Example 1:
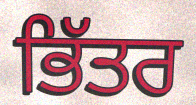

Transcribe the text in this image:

ਭਿੱਤਰ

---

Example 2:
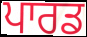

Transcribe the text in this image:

ਪਾਰਡ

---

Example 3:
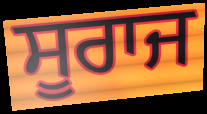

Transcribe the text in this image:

ਸੂਰਾਜ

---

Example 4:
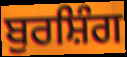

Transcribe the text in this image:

ਬੁਰਸ਼ਿੰਗ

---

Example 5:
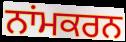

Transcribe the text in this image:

ਨਾਂਮਕਰਨ